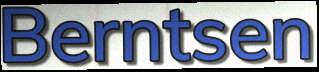
Berntsen